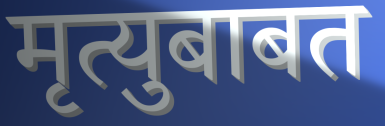
मृत्युबाबत